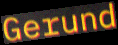
Gerund